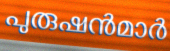
പുരുഷൻമാർ